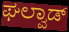
ಘಲ್ವಾಡ್